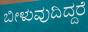
ಬೀಳುವುದಿದ್ದರೆ